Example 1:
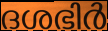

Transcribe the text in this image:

ദശഭിർ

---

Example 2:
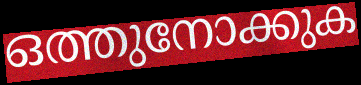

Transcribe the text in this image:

ഒത്തുനോക്കുക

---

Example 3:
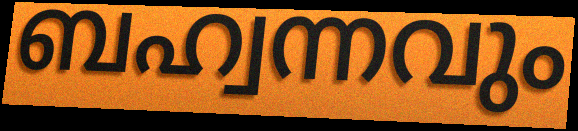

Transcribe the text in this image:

ബഹ്വന്നവും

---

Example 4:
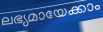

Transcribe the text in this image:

ലഭ്യമായേക്കാം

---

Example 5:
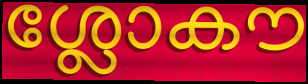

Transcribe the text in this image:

ശ്ലോകൗ